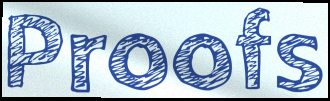
Proofs